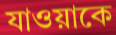
যাওয়াকে